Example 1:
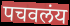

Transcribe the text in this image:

पचवलंय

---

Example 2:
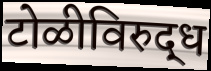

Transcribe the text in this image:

टोळीविरुद्ध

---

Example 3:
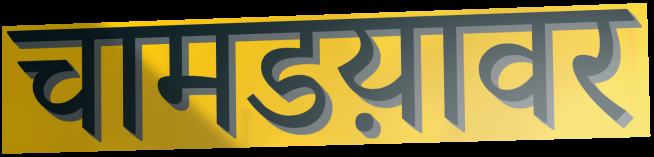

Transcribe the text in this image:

चामडय़ावर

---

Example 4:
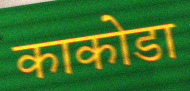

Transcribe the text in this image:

काकोडा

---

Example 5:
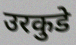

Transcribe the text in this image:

उरकुडे